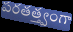
పరతత్త్వంగా